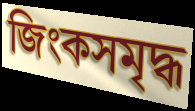
জিংকসমৃদ্ধ